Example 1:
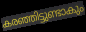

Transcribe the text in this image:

കരഞ്ഞിട്ടുണ്ടാകും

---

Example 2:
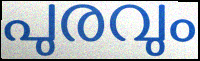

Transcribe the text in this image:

പുരവും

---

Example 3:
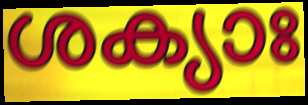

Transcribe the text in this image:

ശക്യാഃ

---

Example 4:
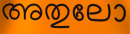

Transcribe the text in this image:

അതുലോ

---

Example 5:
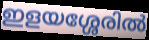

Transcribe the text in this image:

ഇളയശ്ശേരിൽ